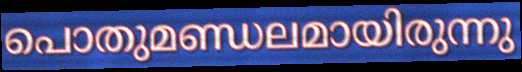
പൊതുമണ്ഡലമായിരുന്നു